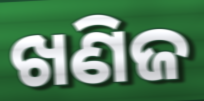
ଖଣିଜ